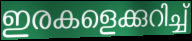
ഇരകളെക്കുറിച്ച്